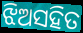
ଝିଅସହିତ